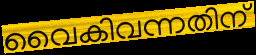
വൈകിവന്നതിന്